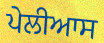
ਪੇਲੀਆਸ